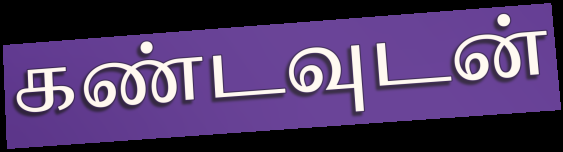
கண்டவுடன்